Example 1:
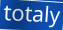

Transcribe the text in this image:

totaly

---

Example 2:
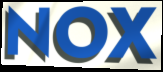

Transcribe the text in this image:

NOX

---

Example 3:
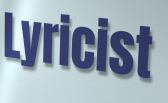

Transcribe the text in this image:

Lyricist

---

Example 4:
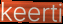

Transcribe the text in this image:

keerti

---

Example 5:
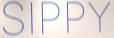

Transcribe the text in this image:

SIPPY